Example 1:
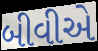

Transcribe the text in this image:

બીવીએ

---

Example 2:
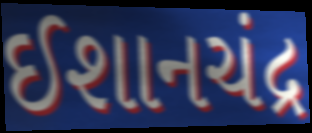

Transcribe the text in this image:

ઈશાનચંદ્ર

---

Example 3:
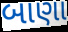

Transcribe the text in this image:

બાણા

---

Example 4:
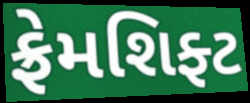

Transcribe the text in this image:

ફ્રેમશિફ્ટ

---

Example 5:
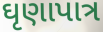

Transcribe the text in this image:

ઘૃણાપાત્ર